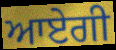
ਆਏਗੀ